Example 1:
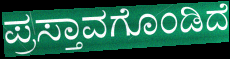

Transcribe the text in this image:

ಪ್ರಸ್ತಾವಗೊಂಡಿದೆ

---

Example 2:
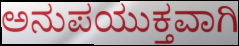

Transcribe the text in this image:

ಅನುಪಯುಕ್ತವಾಗಿ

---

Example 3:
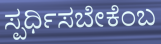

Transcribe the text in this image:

ಸ್ಪರ್ಧಿಸಬೇಕೆಂಬ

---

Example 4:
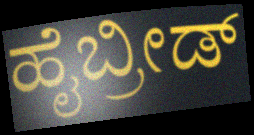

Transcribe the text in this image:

ಹೈಬ್ರೀಡ್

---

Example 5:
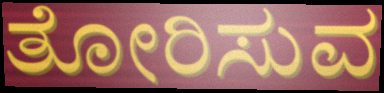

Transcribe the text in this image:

ತೋರಿಸುವ